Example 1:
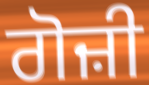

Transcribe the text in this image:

ਗੋਜ਼ੀ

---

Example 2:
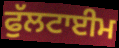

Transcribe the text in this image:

ਫੁੱਲਟਾਈਮ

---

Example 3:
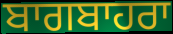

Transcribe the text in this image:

ਬਾਗਬਾਹਰਾ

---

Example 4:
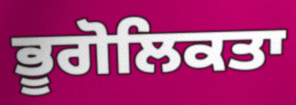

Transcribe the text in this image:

ਭੂਗੋਲਿਕਤਾ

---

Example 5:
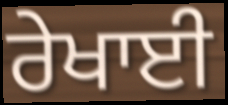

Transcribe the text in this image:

ਰੇਖਾਈ